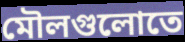
মৌলগুলোতে